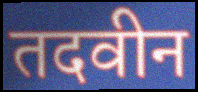
तदवीन